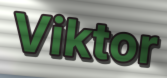
Viktor